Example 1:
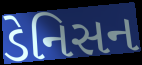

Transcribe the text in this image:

ડેનિસન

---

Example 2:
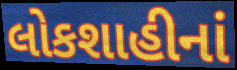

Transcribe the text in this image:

લોકશાહીનાં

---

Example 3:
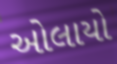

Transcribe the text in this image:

ઓલાયો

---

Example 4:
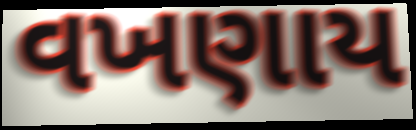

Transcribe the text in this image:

વખણાય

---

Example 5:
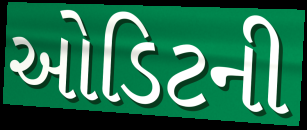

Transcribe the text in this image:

ઓડિટની